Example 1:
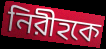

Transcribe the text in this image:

নিরীহকে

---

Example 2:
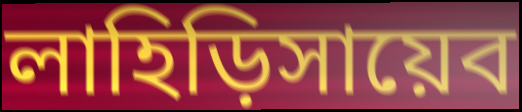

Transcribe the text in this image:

লাহিড়িসায়েব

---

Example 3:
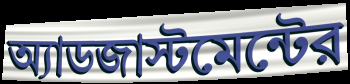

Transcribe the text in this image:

অ্যাডজাস্টমেন্টের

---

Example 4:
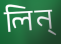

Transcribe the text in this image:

লিন্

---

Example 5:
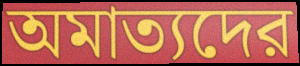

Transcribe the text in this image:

অমাত্যদের